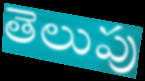
తెలుపు